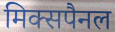
मिक्सपैनल